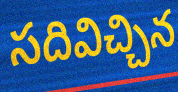
సదివిచ్చిన